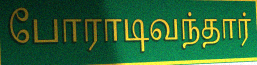
போராடிவந்தார்